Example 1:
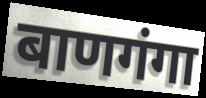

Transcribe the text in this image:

बाणगंगा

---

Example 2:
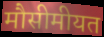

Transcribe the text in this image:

मौसीमीयत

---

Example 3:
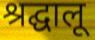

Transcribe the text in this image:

श्रद्घालू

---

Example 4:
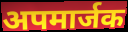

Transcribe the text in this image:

अपमार्जक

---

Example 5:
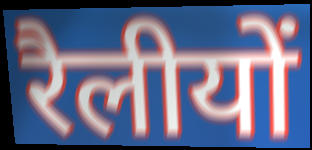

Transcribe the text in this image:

रैलीयों